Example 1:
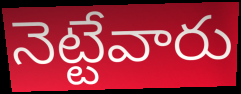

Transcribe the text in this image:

నెట్టేవారు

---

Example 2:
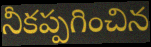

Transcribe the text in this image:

నీకప్పగించిన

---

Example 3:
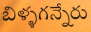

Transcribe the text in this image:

బిళ్ళగన్నేరు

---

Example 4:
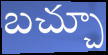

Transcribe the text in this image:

బచ్చూ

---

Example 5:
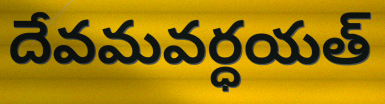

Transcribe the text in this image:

దేవమవర్ధయత్